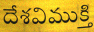
దేశవిముక్తి